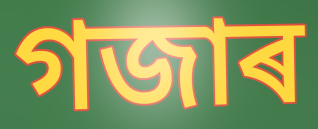
গজাৰ